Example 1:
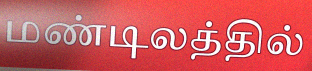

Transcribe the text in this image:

மண்டிலத்தில்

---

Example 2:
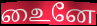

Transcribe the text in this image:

உைனே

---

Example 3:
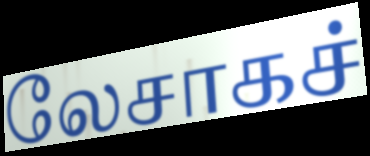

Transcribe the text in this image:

லேசாகச்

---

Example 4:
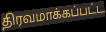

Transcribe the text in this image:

திரவமாக்கப்பட்ட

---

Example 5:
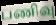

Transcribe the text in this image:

பணிவு